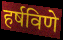
हर्षविणे